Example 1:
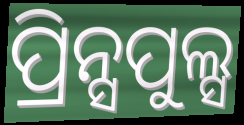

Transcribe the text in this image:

ପ୍ରିନ୍ସପୁଲ୍ସ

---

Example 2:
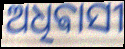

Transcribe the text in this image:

ଅଧିଵାସୀ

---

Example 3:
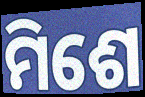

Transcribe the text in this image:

ମିଶେ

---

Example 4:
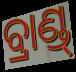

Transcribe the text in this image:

ବ୍ରାଣ୍ଡ୍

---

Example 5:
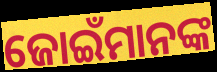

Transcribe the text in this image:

ଜୋଇଁମାନଙ୍କ